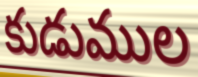
కుడుముల